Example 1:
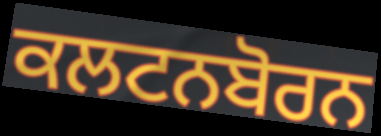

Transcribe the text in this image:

ਕਲਟਨਬੋਰਨ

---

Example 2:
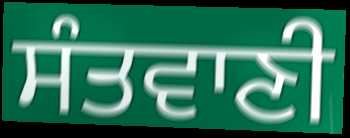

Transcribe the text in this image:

ਸੰਤਵਾਣੀ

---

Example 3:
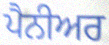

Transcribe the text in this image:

ਪੈਨੀਅਰ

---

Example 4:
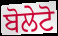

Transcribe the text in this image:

ਬੋਲੇਟੋ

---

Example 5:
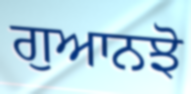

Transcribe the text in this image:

ਗੁਆਨਝੋ